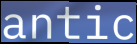
antic